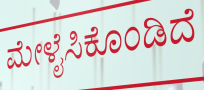
ಮೇಳೈಸಿಕೊಂಡಿದೆ